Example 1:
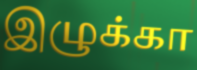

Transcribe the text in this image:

இழுக்கா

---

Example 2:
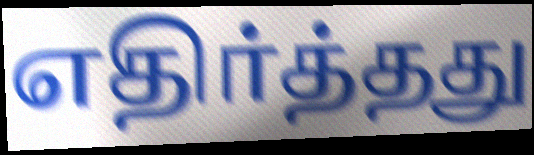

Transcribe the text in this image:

எதிர்த்தது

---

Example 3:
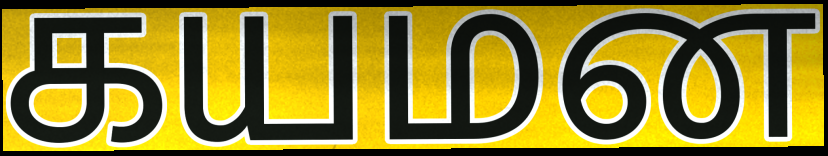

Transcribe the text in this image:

கயமன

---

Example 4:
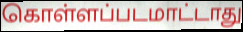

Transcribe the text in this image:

கொள்ளப்படமாட்டாது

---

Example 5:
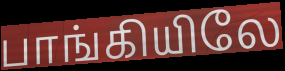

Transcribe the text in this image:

பாங்கியிலே